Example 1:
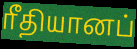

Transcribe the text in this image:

ரீதியானப்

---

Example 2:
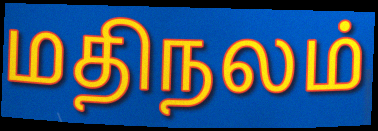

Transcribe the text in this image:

மதிநலம்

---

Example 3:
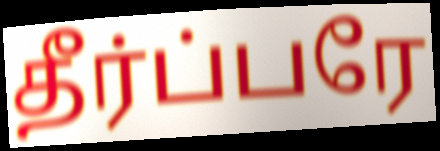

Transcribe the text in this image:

தீர்ப்பரே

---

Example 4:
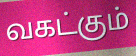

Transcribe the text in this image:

வகட்கும்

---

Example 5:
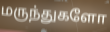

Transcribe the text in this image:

மருந்துகளோ